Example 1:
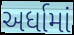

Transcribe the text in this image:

અર્ધામાં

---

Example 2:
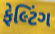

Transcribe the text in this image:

ફેલ્ટિંગ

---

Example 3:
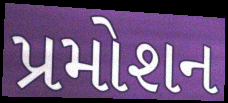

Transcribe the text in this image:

પ્રમોશન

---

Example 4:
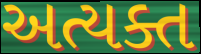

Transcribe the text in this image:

અત્યક્ત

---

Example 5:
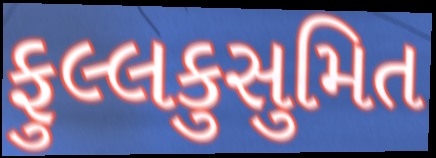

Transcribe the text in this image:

ફુલ્લકુસુમિત